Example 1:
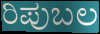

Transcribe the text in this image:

ರಿಪುಬಲ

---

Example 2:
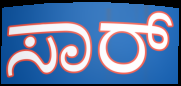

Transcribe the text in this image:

ಸಾರ್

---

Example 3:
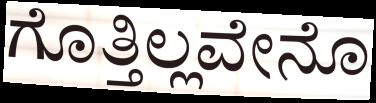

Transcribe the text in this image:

ಗೊತ್ತಿಲ್ಲವೇನೊ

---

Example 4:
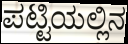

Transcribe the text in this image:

ಪಟ್ಟಿಯಲ್ಲಿನ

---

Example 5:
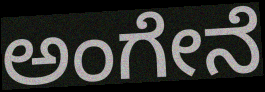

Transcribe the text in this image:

ಅಂಗೇನೆ